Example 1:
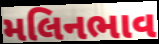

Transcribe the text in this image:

મલિનભાવ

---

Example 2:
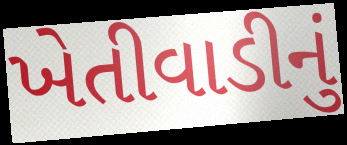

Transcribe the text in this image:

ખેતીવાડીનું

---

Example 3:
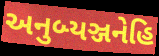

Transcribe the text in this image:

અનુબ્યઞ્જનેહિ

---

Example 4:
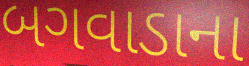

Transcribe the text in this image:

બગવાડાના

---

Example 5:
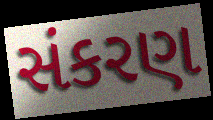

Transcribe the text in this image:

સંકરણ